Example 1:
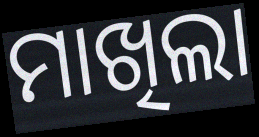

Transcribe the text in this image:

ମାଖିଲା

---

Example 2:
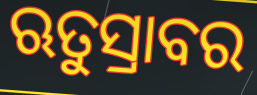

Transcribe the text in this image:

ଋତୁସ୍ରାବର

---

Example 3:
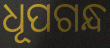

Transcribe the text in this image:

ଧୂପଗନ୍ଧ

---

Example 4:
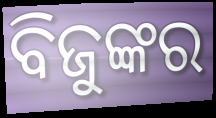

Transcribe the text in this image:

ବିଜୁଙ୍କର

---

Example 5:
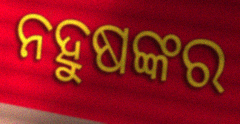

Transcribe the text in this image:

ନହୁଷଙ୍କର